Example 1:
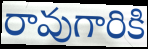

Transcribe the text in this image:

రావుగారికి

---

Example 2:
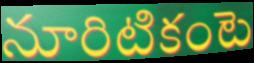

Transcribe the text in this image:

నూరిటికంటె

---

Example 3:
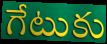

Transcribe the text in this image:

గేటుకు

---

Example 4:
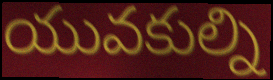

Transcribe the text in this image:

యువకుల్ని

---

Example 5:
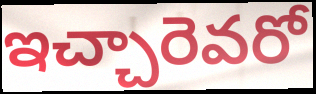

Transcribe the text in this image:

ఇచ్చారెవరో